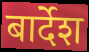
बार्देश